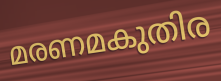
മരണമകുതിര